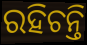
ରହିଚନ୍ତି